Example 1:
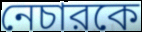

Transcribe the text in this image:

নেচারকে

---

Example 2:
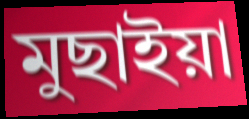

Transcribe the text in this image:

মুছাইয়া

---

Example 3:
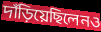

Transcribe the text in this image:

দাঁড়িয়েছিলেনও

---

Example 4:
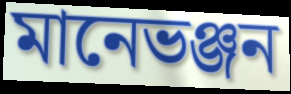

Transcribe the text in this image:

মানেভঞ্জন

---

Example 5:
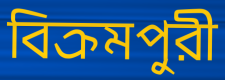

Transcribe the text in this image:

বিক্রমপুরী